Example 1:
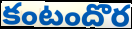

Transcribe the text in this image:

కంటందొర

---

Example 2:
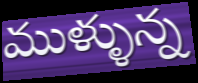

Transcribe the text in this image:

ముళ్ళున్న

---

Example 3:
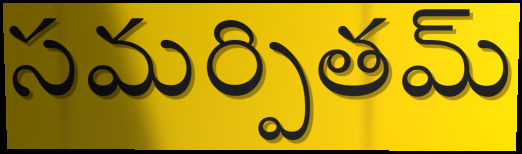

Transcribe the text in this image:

సమర్పితమ్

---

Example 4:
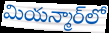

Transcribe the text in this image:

మియన్మార్‌లో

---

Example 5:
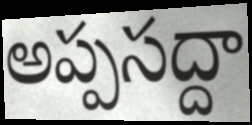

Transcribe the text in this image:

అప్పసద్దా